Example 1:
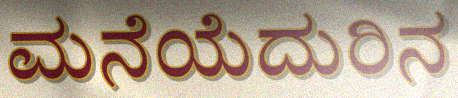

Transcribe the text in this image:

ಮನೆಯೆದುರಿನ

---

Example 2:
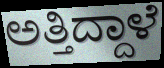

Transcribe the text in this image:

ಅತ್ತಿದ್ದಾಳೆ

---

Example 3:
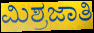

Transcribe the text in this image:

ಮಿಶ್ರಜಾತಿ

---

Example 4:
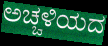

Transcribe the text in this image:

ಅಚ್ಚಳಿಯದ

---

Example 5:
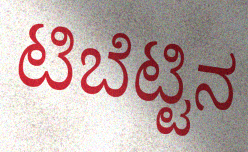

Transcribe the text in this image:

ಟಿಬೆಟ್ಟಿನ